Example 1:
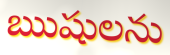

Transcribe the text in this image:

ఋషులను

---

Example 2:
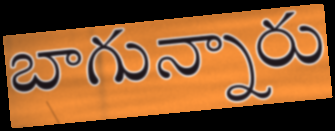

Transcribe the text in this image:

బాగున్నారు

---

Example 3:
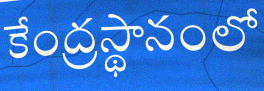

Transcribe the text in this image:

కేంద్రస్థానంలో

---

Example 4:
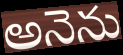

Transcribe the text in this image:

అనెను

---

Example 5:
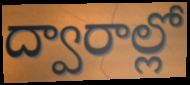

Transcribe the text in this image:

ద్వారాల్లో